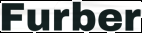
Furber